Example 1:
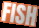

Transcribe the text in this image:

FISH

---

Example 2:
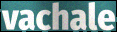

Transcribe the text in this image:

vachale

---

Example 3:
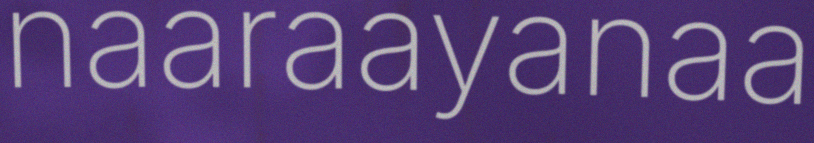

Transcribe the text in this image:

naaraayanaa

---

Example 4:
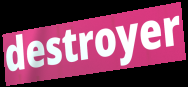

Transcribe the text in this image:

destroyer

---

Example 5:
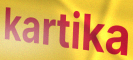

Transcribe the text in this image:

kartika